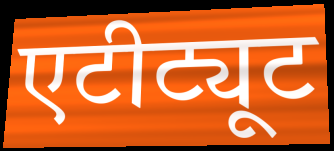
एटीट्यूट